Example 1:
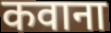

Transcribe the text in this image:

कवाना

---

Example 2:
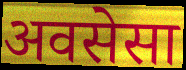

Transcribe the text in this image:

अवसेसा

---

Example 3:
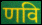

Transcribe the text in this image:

णवि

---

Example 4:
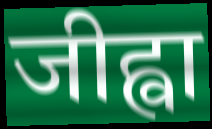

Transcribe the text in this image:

जीह्वा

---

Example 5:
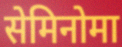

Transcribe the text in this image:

सेमिनोमा